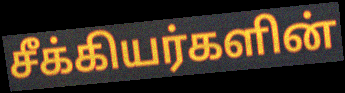
சீக்கியர்களின்